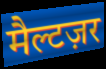
मैल्टज़र